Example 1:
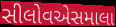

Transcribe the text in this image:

સીલોવએસમાલા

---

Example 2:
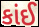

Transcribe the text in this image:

કાંઈ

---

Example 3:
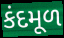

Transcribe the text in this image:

કંદમૂળ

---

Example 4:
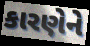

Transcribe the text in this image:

કારણેને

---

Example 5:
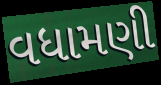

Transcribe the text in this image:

વધામણી